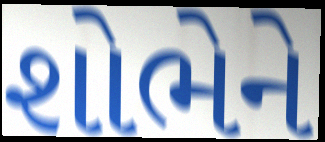
શોભેને